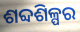
ଶବ୍ଦଶିଳ୍ପର